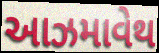
આઝમાવેથ